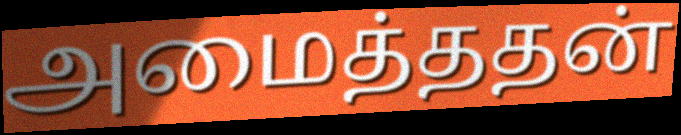
அமைத்ததன்